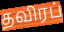
தவிரப்